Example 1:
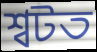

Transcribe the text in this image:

শ্বটত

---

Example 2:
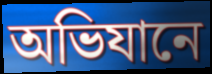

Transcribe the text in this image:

অভিযানে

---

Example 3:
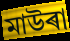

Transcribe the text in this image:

মাউৰা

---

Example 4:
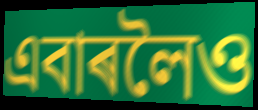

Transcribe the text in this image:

এবাৰলৈও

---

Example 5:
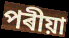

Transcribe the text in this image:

পৰীয়া